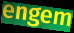
engem